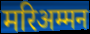
मरिअम्मन